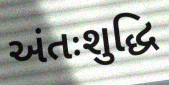
અંતઃશુદ્ધિ